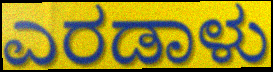
ಎರಡಾಳು